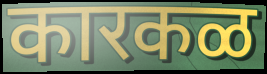
कारकळ